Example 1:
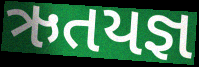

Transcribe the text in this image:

ઋતયજ્ઞ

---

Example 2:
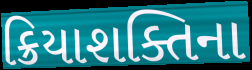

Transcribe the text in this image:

ક્રિયાશક્તિના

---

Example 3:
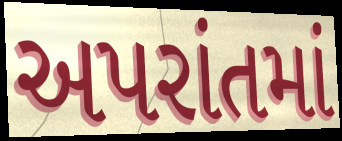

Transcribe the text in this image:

અપરાંતમાં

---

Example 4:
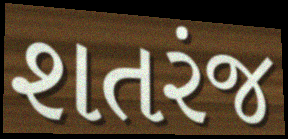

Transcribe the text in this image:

શતરંજ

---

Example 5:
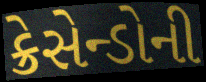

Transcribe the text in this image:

ક્રેસેન્ડોની